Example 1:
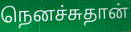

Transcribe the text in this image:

நெனச்சுதான்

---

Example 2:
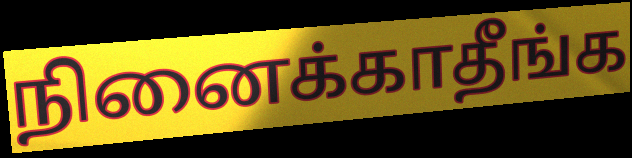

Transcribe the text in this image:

நினைக்காதீங்க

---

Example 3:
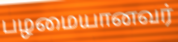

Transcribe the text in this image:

பழமையானவர்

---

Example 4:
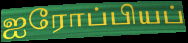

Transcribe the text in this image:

ஐரோப்பியப்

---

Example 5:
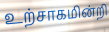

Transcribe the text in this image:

உற்சாகமின்றி